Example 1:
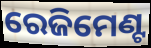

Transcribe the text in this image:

ରେଜିମେଣ୍ଟ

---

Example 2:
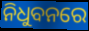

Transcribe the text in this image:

ନିଧୁବନରେ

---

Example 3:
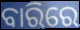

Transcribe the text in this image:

ବାରିରେ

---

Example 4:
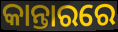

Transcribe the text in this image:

କାନ୍ତାରରେ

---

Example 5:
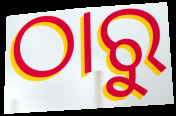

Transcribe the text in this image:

ଠାରୁ